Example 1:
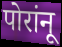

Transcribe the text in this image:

पोरांनू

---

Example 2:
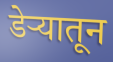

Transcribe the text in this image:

डेऱ्यातून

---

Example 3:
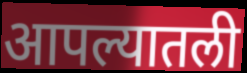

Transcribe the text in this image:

आपल्यातली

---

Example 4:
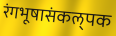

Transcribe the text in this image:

रंगभूषासंकल्पक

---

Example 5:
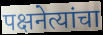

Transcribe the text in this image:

पक्षनेत्यांचा